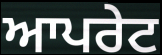
ਆਪਰੇਟ